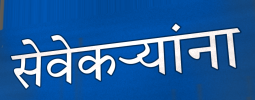
सेवेकऱ्यांना